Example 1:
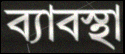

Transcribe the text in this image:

ব্যাবস্থা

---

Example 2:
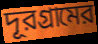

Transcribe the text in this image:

দূরগ্রামের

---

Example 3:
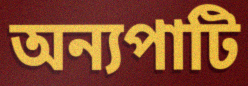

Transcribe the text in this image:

অন্যপাটি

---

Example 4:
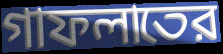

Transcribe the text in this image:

গাফলাতের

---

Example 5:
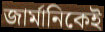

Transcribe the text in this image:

জার্মানিকেই